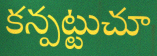
కన్పట్టుచూ